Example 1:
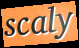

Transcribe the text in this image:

scaly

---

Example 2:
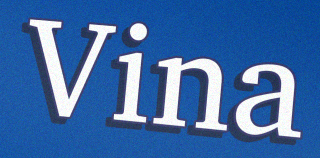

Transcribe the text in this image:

Vina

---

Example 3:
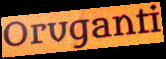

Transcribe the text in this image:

Oruganti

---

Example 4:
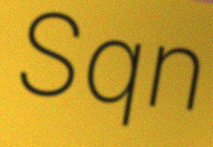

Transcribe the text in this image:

Sqn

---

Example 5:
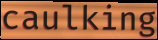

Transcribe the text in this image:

caulking